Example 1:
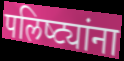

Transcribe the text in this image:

पलिष्ट्यांना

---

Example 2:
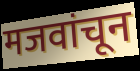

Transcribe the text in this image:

मजवांचून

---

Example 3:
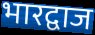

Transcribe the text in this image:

भारद्वाज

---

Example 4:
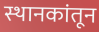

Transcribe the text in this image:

स्थानकांतून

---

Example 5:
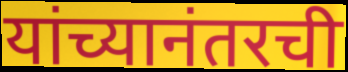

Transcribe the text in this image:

यांच्यानंतरची